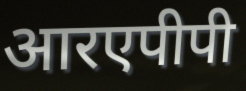
आरएपीपी